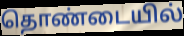
தொண்டையில்